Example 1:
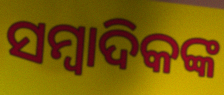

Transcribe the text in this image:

ସମ୍ୱାଦିକଙ୍କ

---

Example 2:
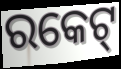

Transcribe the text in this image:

ରକେଟ୍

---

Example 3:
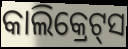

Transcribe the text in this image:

କାଲିକ୍ରେଟ୍‍ସ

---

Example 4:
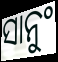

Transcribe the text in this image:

ସାନୁଂ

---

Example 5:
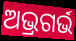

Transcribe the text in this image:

ଅଭ୍ରଗର୍ଭ